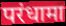
परंधामा